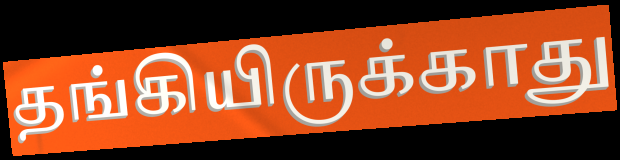
தங்கியிருக்காது